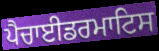
ਪੈਚਾਈਡਰਮਾਟਿਸ